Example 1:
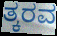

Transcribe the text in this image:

ತ್ಕರವ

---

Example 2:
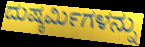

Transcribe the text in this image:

ದುಷ್ಕರ್ಮಿಗಳನ್ನು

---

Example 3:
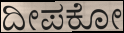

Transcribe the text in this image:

ದೀಪಕೋ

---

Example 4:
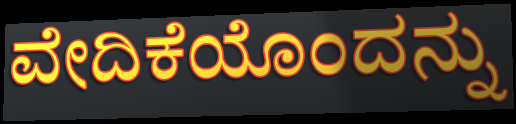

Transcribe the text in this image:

ವೇದಿಕೆಯೊಂದನ್ನು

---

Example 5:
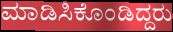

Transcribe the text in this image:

ಮಾಡಿಸಿಕೊಂಡಿದ್ದರು